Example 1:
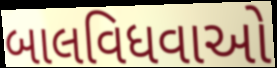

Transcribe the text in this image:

બાલવિધવાઓ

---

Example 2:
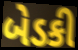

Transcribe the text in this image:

બેડકી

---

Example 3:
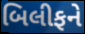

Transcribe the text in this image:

બિલીફને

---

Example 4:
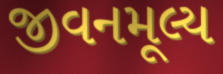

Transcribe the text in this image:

જીવનમૂલ્ય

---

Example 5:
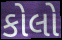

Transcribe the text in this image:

કોલો